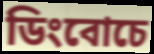
ডিংবোচে